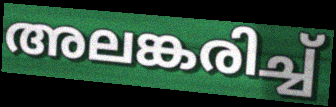
അലങ്കരിച്ച്